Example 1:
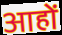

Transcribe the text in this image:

आहों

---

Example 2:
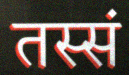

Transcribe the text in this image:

तस्सं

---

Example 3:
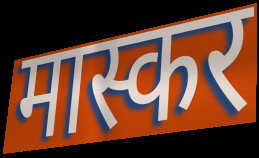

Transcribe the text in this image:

मास्कर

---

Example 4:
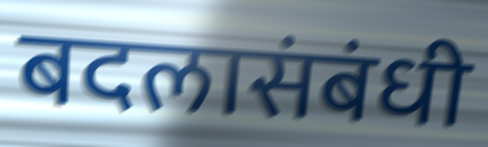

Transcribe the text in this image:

बदलासंबंधी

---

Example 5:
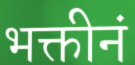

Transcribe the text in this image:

भक्तीनं